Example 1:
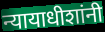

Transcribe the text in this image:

न्यायाधीशांनी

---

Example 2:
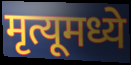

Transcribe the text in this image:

मृत्यूमध्ये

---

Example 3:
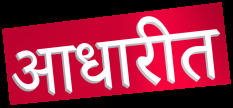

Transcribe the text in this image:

आधारीत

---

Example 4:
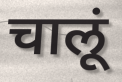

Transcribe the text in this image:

चालूं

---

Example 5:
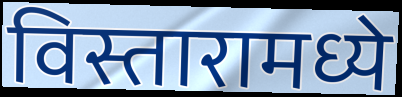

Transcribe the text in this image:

विस्तारामध्ये